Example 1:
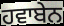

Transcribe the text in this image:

ਹਵਾਬੇਨ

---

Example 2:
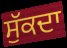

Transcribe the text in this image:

ਸੁੱਕਦਾ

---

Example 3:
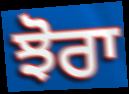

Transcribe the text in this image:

ਝੋਰਾ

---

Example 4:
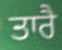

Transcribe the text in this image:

ਤਾਰੈ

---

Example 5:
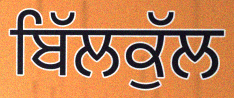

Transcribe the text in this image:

ਬਿੱਲਕੁੱਲ